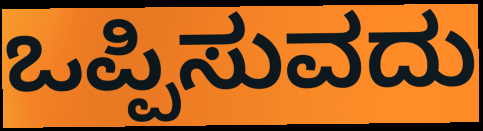
ಒಪ್ಪಿಸುವದು